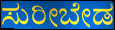
ಸುರೀಬೇಡ